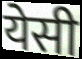
येसी